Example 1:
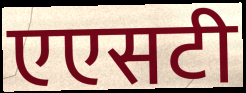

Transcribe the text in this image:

एएसटी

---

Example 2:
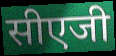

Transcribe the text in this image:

सीएजी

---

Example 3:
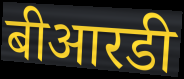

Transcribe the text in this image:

बीआरडी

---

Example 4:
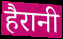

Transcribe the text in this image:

हैरानी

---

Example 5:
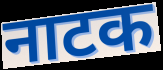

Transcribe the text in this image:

नाटक